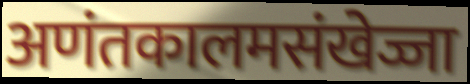
अणंतकालमसंखेज्जा